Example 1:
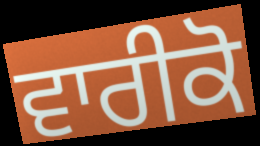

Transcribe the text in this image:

ਵਾਰੀਕੋ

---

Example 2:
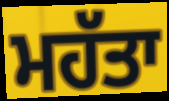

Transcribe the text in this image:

ਮਹੱਤਾ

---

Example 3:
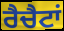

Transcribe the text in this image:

ਰੈਚੈਟਾਂ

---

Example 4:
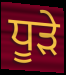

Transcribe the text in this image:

ਧੂੜੇ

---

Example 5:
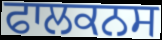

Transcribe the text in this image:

ਫਾਲਕਨਸ